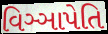
વિઞ્ઞાપેતિ